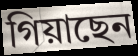
গিয়াছেন